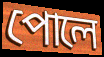
পোলে